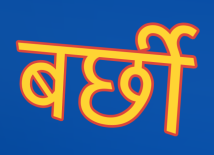
बर्छी